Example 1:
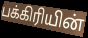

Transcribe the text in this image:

பக்கிரியின்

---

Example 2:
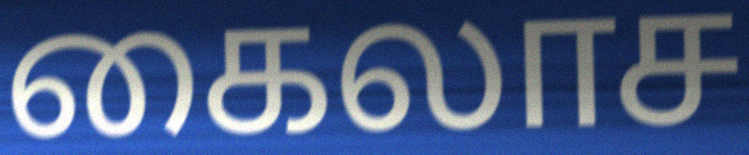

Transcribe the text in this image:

கைலாச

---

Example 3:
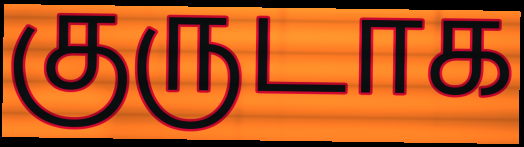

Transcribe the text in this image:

குருடாக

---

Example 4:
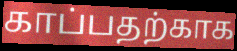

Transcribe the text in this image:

காப்பதற்காக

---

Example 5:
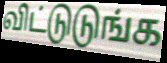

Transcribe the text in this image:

விட்டுடுங்க